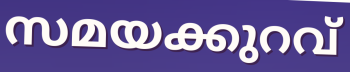
സമയക്കുറവ്